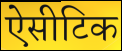
ऐसीटिक